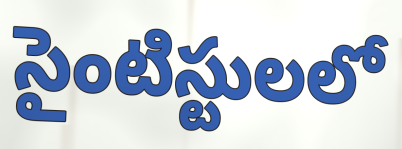
సైంటిస్టులలో